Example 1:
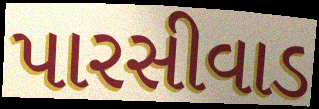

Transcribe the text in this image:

પારસીવાડ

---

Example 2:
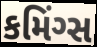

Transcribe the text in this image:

કમિંગ્સ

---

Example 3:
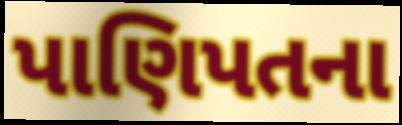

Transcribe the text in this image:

પાણિપતના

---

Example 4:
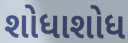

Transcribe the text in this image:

શોધાશોધ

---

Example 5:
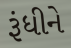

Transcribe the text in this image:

રૂંધીને